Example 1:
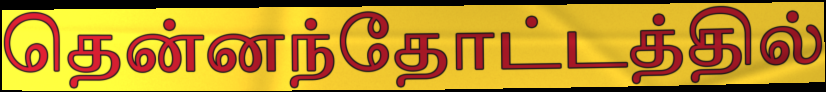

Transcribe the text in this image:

தென்னந்தோட்டத்தில்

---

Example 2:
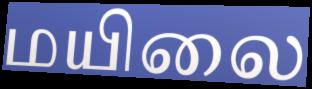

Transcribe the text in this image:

மயிலை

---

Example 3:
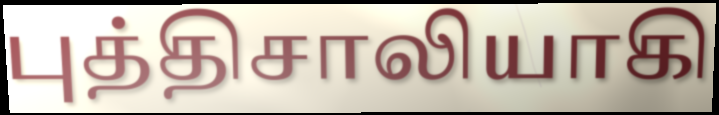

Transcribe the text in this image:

புத்திசாலியாகி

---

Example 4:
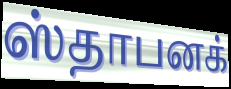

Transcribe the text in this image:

ஸ்தாபனக்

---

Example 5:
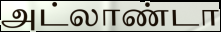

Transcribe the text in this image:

அட்லாண்டா